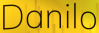
Danilo